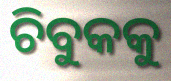
ଚିବୁକକୁ